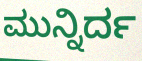
ಮುನ್ನಿರ್ದ